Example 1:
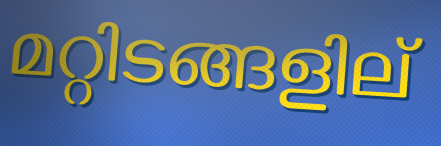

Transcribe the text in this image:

മറ്റിടങ്ങളില്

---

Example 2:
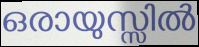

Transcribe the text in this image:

ഒരായുസ്സിൽ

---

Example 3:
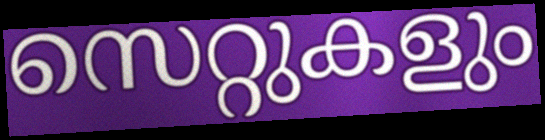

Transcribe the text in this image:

സെറ്റുകളും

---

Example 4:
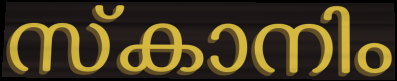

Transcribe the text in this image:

സ്‌കാനിം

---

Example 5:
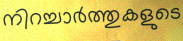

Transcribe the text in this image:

നിറച്ചാർത്തുകളുടെ